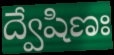
ద్వేషిణః